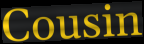
Cousin